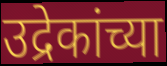
उद्रेकांच्या